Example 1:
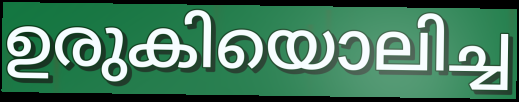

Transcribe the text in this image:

ഉരുകിയൊലിച്ച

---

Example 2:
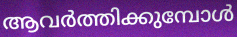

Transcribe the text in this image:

ആവർത്തിക്കുമ്പോൾ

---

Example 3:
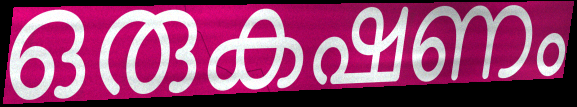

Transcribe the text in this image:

ഒരുകഷണം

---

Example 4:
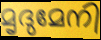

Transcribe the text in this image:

മൃദുമേനി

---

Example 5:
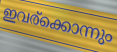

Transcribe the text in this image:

ഇവര്ക്കൊന്നും